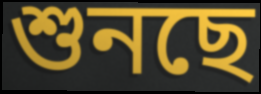
শুনছে